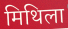
मिथिला